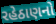
રહેઠાણનો